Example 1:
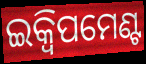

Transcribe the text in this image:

ଇକ୍ୱିପମେଣ୍ଟ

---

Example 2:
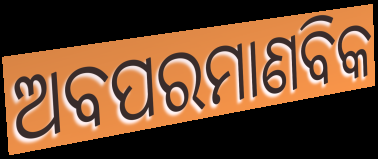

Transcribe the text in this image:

ଅବପରମାଣବିକ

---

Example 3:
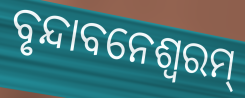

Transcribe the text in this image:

ବୃନ୍ଦାବନେଶ୍ୱରମ୍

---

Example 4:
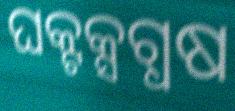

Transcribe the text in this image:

ଘକ୍ଟକ୍ସଗ୍ଧଷ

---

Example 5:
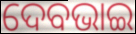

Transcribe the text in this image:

ଦେବଭାଇ